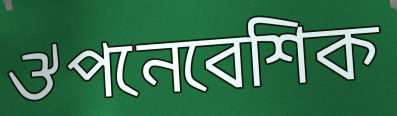
ঔপনেবেশিক